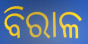
ବିରାଳ